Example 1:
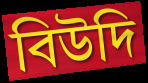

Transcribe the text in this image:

বিউদি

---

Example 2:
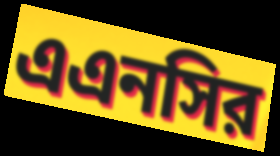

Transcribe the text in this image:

এএনসির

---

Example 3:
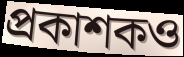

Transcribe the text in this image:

প্রকাশকও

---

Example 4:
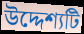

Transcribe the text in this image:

উদ্দেশ্যটি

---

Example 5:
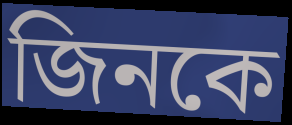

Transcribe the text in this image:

জিনকে